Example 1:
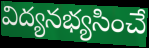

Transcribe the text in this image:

విద్యనభ్యసించే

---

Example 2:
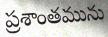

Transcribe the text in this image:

ప్రశాంతమును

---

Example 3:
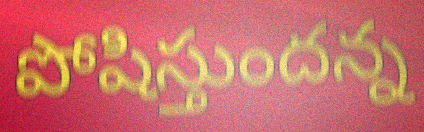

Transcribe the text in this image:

పోషిస్తుందన్న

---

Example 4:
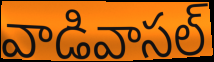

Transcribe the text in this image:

వాడివాసల్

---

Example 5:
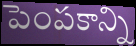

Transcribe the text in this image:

పెంపకాన్ని